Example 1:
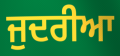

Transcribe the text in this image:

ਜੁਦਰੀਆ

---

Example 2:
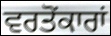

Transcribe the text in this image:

ਵਰਤੋਂਕਾਰਾਂ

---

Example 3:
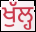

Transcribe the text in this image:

ਖੁੱਲ੍ਹ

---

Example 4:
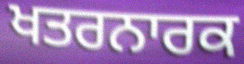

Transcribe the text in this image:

ਖਤਰਨਾਰਕ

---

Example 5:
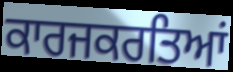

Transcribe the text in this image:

ਕਾਰਜਕਰਤਿਆਂ